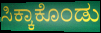
ಸಿಕ್ಕಾಕೊಂಡು